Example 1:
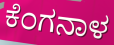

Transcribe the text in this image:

ಕೆಂಗನಾಳ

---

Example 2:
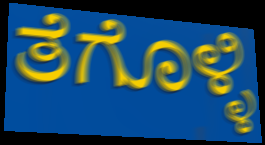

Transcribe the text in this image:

ತೆಗೊಳ್ಳಿ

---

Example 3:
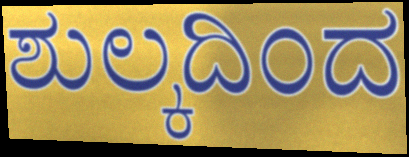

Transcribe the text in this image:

ಶುಲ್ಕದಿಂದ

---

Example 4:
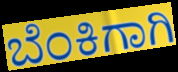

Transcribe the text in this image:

ಬೆಂಕಿಗಾಗಿ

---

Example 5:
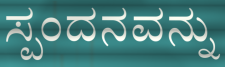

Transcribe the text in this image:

ಸ್ಪಂದನವನ್ನು